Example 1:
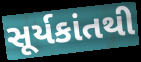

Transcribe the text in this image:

સૂર્યકાંતથી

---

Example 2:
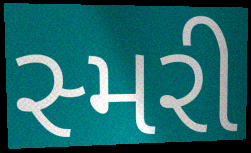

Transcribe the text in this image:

સ્મરી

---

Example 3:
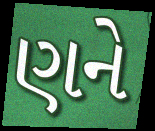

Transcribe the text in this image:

ણને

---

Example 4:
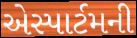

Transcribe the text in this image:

એસ્પાર્ટમની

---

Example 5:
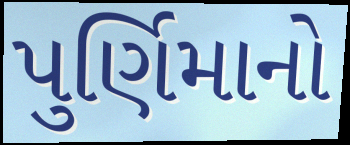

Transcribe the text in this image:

પુર્ણિમાનો